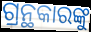
ଗ୍ରନ୍ଥକାରଙ୍କୁ